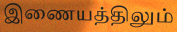
இணையத்திலும்